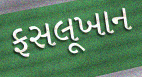
ફસલૂખાન